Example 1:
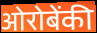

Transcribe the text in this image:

ओरोबेंकी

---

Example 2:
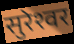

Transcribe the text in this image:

सुरेश्वर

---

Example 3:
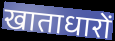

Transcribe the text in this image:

खाताधारों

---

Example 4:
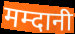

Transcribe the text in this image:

मम्दानी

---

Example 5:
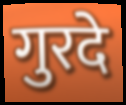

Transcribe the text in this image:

गुरदे